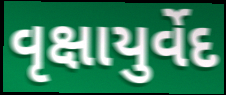
વૃક્ષાયુર્વેદ